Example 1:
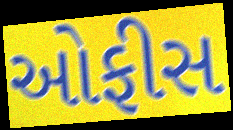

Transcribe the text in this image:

ઓફીસ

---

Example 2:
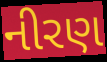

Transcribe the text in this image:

નીરણ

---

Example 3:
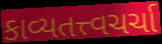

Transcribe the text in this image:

કાવ્યતત્ત્વચર્ચા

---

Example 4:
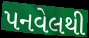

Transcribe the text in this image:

પનવેલથી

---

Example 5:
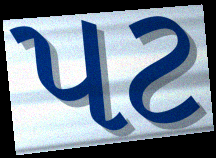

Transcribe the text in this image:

પટ